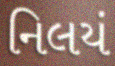
નિલયં